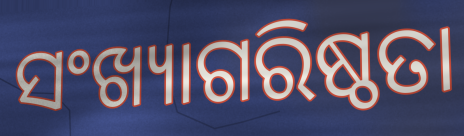
ସଂଖ୍ୟାଗରିଷ୍ଠତା